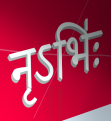
नृऽभिः॑